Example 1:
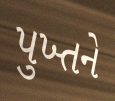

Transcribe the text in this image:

પુખ્તને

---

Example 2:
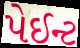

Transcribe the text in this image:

પેઈન્ટ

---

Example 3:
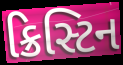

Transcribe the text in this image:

ક્રિસ્ટિન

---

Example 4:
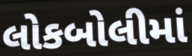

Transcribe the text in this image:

લોકબોલીમાં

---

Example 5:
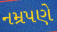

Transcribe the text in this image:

નમ્રપણે